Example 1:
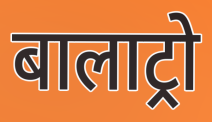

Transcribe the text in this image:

बालाट्रो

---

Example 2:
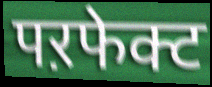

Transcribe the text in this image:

पऱफेक्ट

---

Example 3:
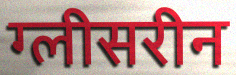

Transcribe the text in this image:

ग्लीसरीन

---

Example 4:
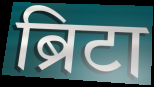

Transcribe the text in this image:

ब्रिटा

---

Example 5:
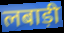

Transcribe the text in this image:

लबाड़ी